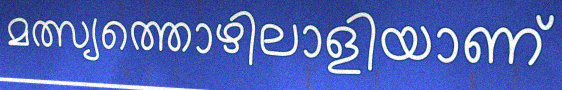
മത്സ്യത്തൊഴിലാളിയാണ്